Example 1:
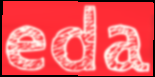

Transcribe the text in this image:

eda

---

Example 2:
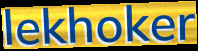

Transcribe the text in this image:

lekhoker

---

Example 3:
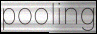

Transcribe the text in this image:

pooling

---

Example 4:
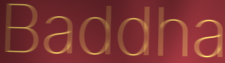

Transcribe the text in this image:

Baddha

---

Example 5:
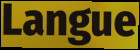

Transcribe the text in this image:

Langue